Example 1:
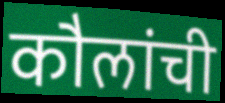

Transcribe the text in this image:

कौलांची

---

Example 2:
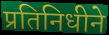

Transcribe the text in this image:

प्रतिनिधीने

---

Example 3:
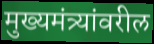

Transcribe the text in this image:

मुख्यमंत्र्यांवरील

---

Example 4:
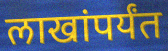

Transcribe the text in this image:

लाखांपर्यंत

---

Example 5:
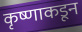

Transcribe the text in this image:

कृष्णाकडून